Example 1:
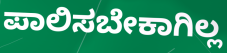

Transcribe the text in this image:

ಪಾಲಿಸಬೇಕಾಗಿಲ್ಲ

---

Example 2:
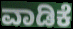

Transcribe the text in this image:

ವಾಡಿಕೆ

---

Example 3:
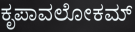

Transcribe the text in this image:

ಕೃಪಾವಲೋಕಮ್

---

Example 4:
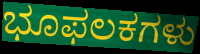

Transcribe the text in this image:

ಭೂಫಲಕಗಳು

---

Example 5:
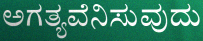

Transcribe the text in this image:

ಅಗತ್ಯವೆನಿಸುವುದು